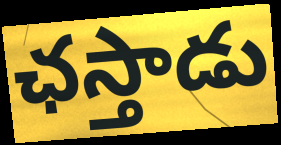
ఛస్తాడు